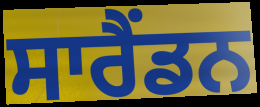
ਸਾਰੈਂਡਨ